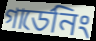
গার্ডেনিং